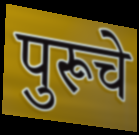
पुरूचे